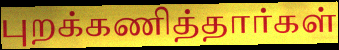
புறக்கணித்தார்கள்